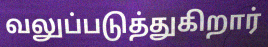
வலுப்படுத்துகிறார்